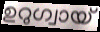
ഉറുഗ്വായ്